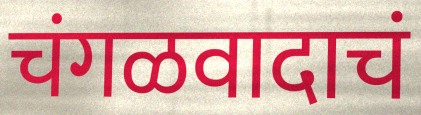
चंगळवादाचं